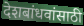
देशबांधवांसाठी